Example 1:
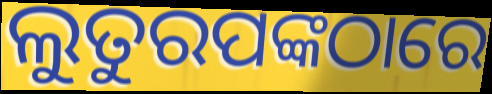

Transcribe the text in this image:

ଲୁତୁରପଙ୍କଠାରେ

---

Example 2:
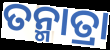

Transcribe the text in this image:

ତନ୍ମାତ୍ରା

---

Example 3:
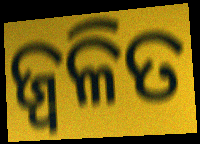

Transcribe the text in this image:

ଜ୍ୱଳିତ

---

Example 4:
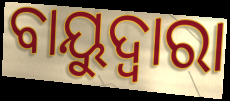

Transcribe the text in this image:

ବାୟୁଦ୍ୱାରା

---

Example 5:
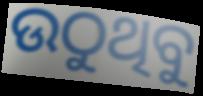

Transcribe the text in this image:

ଉଠୁଥିବୁ